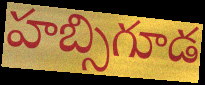
హబ్సిగూడ